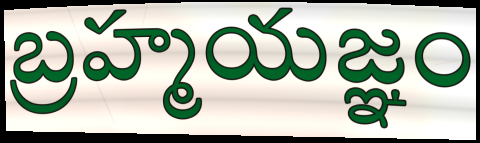
బ్రహ్మయజ్ఞం